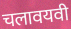
चलावयवी